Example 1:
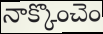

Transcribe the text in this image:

నాక్కొంచెం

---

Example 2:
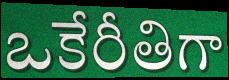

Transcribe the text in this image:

ఒకేరీతిగా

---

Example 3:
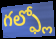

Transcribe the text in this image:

గల్ఫ్లో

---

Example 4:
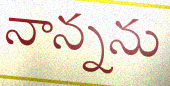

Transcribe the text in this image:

నాన్నను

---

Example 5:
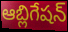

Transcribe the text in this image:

ఆబ్లిగేషన్